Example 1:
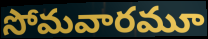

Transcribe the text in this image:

సోమవారమూ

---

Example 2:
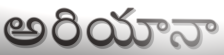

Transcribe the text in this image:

అరియానా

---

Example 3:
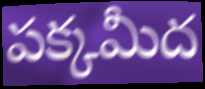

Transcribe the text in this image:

పక్కమీద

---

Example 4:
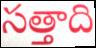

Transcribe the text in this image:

సత్తాది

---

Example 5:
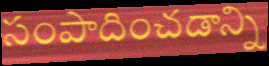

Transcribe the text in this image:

సంపాదించడాన్ని